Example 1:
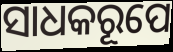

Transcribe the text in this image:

ସାଧକରୂପେ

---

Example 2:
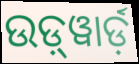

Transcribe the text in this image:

ଉଡ଼୍‍ୱାର୍ଡ଼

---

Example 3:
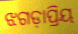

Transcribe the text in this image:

ଝଗଡ଼ାପ୍ରିୟ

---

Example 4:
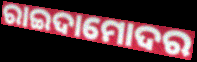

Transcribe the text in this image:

ରାଇଦାମୋଦର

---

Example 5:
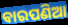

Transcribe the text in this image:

ବାରପଣିଆ